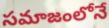
సమాజంలోనే